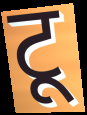
टू